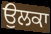
ਉਲਕਾ